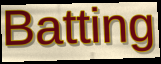
Batting